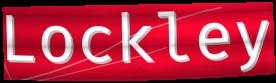
Lockley